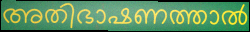
അതിഭാഷണത്താൽ